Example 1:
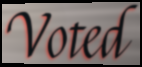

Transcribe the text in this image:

Voted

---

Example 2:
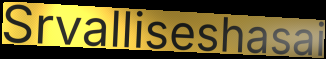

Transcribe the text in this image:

Srvalliseshasai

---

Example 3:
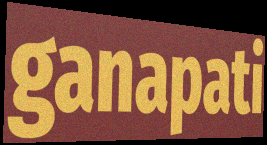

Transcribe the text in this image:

ganapati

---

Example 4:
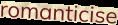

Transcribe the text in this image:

romanticise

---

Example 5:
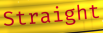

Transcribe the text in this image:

Straight